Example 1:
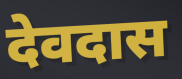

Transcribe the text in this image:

देवदास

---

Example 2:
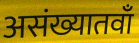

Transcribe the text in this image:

असंख्यातवाँ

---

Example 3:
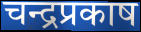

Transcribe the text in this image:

चन्द्रप्रकाष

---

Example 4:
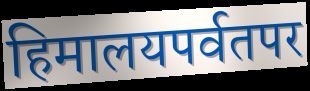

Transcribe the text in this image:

हिमालयपर्वतपर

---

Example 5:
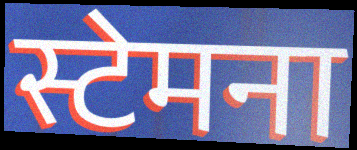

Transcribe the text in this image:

स्टेमना